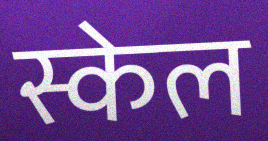
स्केल